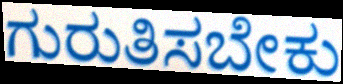
ಗುರುತಿಸಬೇಕು